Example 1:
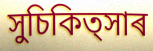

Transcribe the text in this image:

সুচিকিত্সাৰ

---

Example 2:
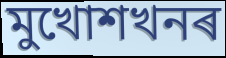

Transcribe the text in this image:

মুখোশখনৰ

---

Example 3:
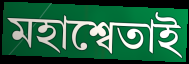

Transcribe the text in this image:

মহাশ্বেতাই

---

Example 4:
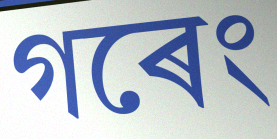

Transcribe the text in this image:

গৰেং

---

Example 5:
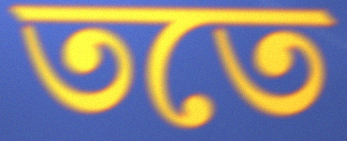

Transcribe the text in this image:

ততে